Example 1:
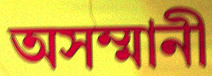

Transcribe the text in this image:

অসম্মানী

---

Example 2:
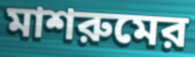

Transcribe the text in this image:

মাশরুমের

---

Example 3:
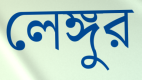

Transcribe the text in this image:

লেঙ্গুর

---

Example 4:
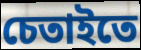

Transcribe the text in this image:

চেতাইতে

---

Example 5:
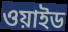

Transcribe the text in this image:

ওয়াইড